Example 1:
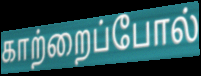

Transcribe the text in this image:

காற்றைப்போல்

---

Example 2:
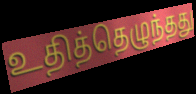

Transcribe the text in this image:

உதித்தெழுந்தது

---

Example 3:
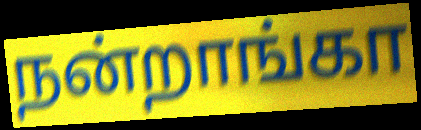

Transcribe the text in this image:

நன்றாங்கா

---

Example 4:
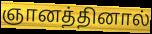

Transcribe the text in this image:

ஞானத்தினால்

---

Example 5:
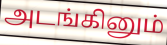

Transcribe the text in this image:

அடங்கினும்